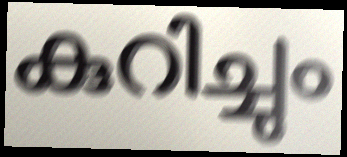
കുറിച്ചും